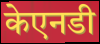
केएनडी